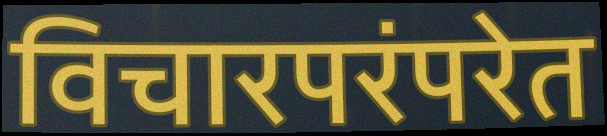
विचारपरंपरेत